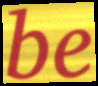
be